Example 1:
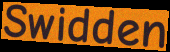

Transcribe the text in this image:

Swidden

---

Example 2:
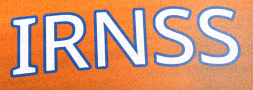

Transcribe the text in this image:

IRNSS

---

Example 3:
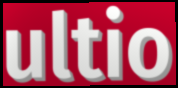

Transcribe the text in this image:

ultio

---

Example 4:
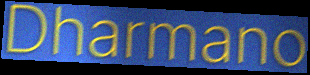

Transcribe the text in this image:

Dharmano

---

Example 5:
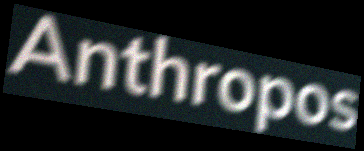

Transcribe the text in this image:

Anthropos